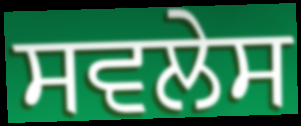
ਸਵਲੇਸ